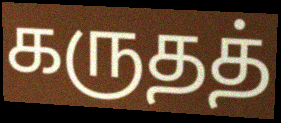
கருதத்